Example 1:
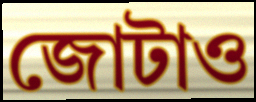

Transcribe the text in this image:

জোটাও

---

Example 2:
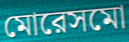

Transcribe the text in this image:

মোরেসমো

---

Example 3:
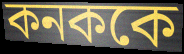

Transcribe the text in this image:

কনককে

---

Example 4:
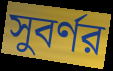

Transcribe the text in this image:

সুবর্ণর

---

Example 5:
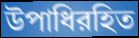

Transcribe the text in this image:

উপাধিরহিত